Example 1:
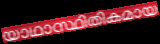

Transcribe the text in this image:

യാഥാസ്ഥിതികമായ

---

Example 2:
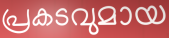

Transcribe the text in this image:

പ്രകടവുമായ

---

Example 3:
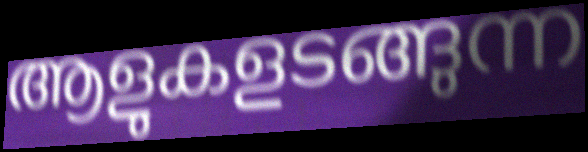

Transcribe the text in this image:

ആളുകളടങ്ങുന്ന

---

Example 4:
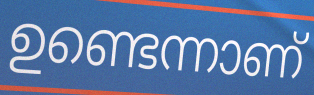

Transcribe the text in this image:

ഉണ്ടെന്നാണ്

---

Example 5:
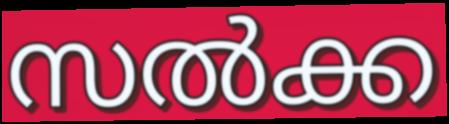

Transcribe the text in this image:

സൽക്ക